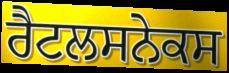
ਰੈਟਲਸਨੇਕਸ